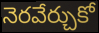
నెరవేర్చుకో